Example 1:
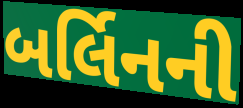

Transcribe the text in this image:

બર્લિનની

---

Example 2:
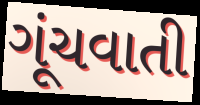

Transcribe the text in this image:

ગૂંચવાતી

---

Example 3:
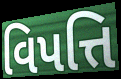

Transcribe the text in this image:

વિપત્તિ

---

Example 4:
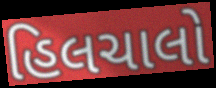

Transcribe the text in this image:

હિલચાલો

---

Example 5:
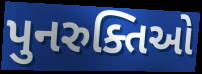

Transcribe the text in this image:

પુનરુક્તિઓ